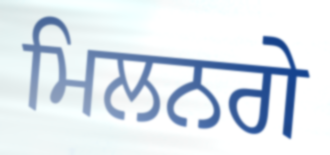
ਮਿਲਨਗੇ